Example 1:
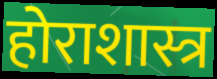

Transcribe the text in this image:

होराशास्त्र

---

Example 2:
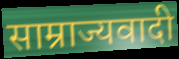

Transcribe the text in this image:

साम्राज्यवादी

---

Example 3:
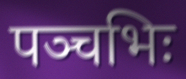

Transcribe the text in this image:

पञ्चभिः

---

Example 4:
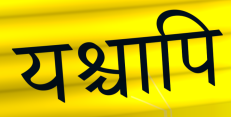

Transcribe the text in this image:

यश्चापि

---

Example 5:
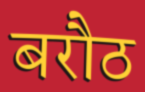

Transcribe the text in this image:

बरौठ